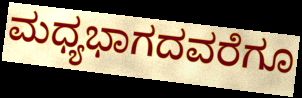
ಮಧ್ಯಭಾಗದವರೆಗೂ